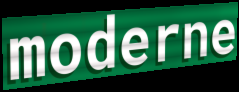
moderne